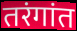
तरंगांत